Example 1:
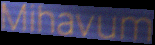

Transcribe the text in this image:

Mihavum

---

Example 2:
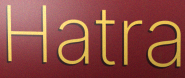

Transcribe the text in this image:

Hatra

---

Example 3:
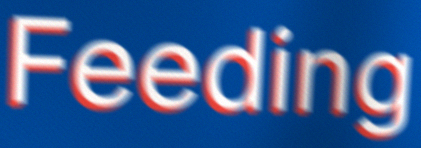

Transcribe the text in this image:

Feeding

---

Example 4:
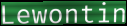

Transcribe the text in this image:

Lewontin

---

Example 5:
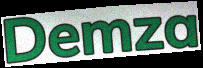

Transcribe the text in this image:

Demza